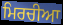
ਮਿਰਚੀਆ